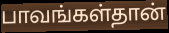
பாவங்கள்தான்